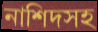
নাশিদসহ